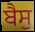
ਬੈਸੁ